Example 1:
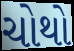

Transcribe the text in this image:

ચોથો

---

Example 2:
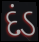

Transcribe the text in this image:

દંડ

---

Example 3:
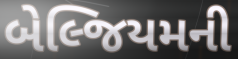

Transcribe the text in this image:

બેલ્જિયમની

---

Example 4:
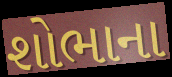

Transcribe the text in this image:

શોભાના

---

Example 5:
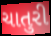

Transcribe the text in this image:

ચાતુરી